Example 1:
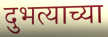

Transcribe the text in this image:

दुभत्याच्या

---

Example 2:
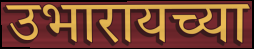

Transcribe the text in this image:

उभारायच्या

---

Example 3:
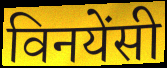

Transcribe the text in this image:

विनयेंसी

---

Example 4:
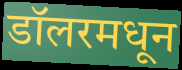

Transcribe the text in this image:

डॉलरमधून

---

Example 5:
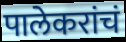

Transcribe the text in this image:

पालेकरांचं